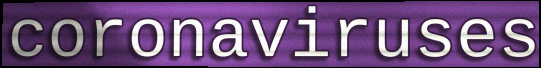
coronaviruses